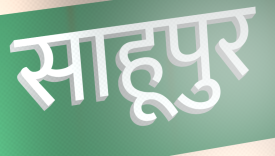
साहूपुर